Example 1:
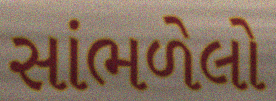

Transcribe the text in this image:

સાંભળેલો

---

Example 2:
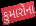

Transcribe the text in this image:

કુમારોના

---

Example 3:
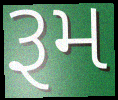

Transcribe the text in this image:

રૂમ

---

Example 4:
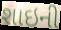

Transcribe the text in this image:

શાઇની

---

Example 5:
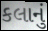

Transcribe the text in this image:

કલાનું